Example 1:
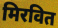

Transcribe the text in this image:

मिरवित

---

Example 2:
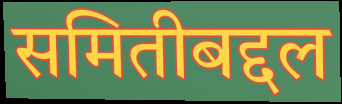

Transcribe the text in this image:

समितीबद्दल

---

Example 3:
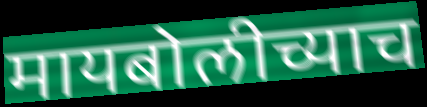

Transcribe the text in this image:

मायबोलीच्याच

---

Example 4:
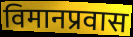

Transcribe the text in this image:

विमानप्रवास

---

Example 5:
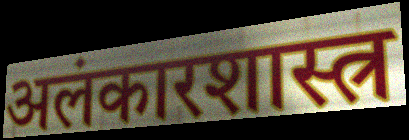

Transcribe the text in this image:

अलंकारशास्त्र